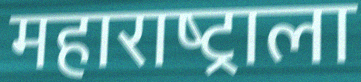
महाराष्ट्राला